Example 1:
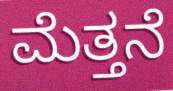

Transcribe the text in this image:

ಮೆತ್ತನೆ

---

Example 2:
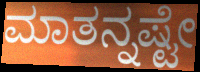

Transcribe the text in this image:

ಮಾತನ್ನಷ್ಟೇ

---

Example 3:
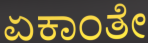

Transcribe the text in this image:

ಏಕಾಂತೇ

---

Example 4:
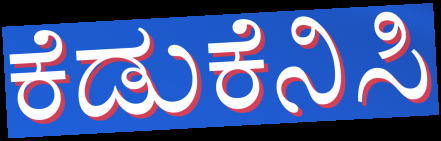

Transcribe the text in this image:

ಕೆಡುಕೆನಿಸಿ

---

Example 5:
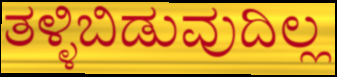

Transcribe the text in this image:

ತಳ್ಳಿಬಿಡುವುದಿಲ್ಲ